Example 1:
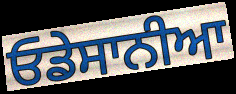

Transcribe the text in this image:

ਓਡੇਸਾਨੀਆ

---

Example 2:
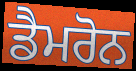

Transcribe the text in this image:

ਡੈਮਰੋਨ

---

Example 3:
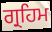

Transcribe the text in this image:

ਗ੍ਰਹਿਮ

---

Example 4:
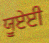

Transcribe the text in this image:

ਯੂਏਈ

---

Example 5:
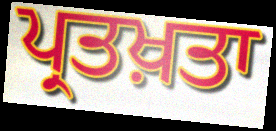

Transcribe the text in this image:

ਪ੍ਰਤਖ਼ਤਾ